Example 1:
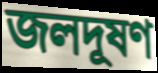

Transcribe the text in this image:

জলদূষণ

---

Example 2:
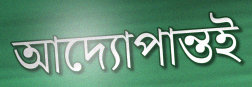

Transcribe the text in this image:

আদ্যোপান্তই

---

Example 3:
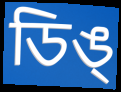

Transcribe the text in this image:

ডিঙ্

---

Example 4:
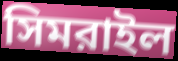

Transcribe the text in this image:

সিমরাইল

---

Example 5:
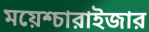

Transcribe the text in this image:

ময়েশ্চারাইজার